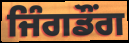
ਜਿੰਗਡੌਂਗ